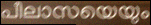
പീലാസയെയും